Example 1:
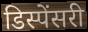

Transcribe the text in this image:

डिस्पेंसरी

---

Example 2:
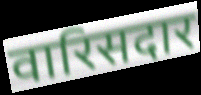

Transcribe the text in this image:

वारिसदार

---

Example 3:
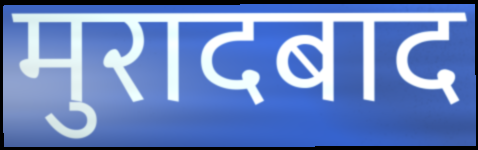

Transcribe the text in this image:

मुरादबाद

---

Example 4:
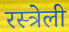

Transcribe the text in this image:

रस्त्रेली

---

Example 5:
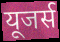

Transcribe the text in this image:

यूजर्स